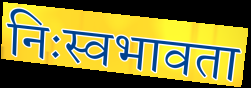
निःस्वभावता